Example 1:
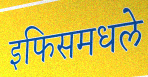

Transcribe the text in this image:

इफिसमधले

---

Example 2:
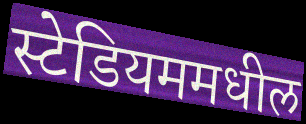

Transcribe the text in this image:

स्टेडियममधील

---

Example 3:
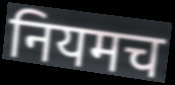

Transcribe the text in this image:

नियमच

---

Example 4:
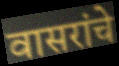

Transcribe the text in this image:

वासरांचे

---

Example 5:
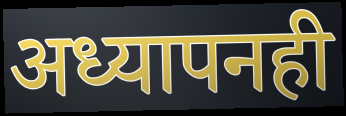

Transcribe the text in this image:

अध्यापनही